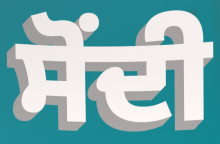
ਸੋਂਦੀ